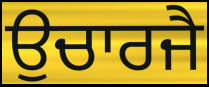
ਉਚਾਰਜੈ